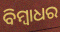
ବିମ୍ବାଧର